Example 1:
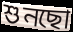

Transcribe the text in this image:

শুনছো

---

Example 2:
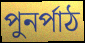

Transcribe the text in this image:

পুনর্পাঠ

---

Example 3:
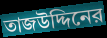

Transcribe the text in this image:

তাজউদ্দিনের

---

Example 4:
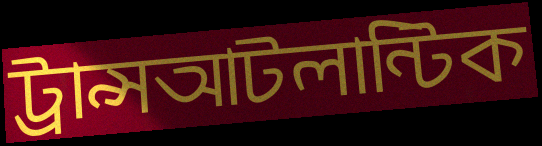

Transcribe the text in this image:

ট্রান্সআটলান্টিক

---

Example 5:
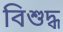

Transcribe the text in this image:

বিশুদ্ধ